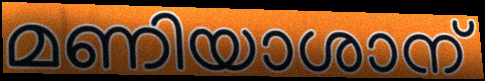
മണിയാശാന്